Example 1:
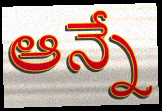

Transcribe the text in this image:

ఆన్నే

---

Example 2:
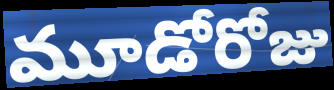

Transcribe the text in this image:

మూడోరోజు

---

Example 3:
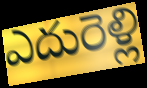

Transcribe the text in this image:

ఎదురెళ్లి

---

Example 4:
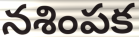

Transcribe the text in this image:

నశింపక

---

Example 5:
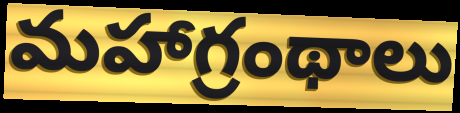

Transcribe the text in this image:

మహాగ్రంథాలు